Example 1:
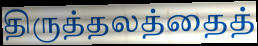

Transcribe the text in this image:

திருத்தலத்தைத்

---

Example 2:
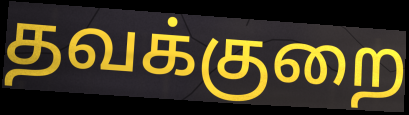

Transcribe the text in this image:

தவக்குறை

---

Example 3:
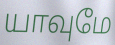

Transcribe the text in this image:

யாவுமே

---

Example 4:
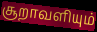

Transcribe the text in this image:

சூறாவளியும்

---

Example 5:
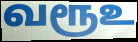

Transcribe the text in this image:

வரூஉ